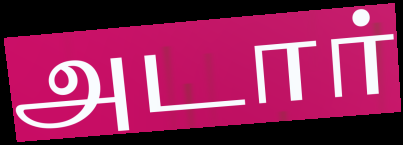
அடார்